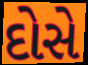
દોસે